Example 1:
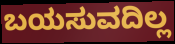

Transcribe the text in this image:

ಬಯಸುವದಿಲ್ಲ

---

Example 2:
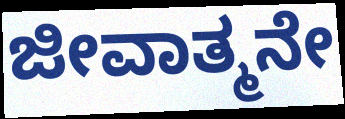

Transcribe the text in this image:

ಜೀವಾತ್ಮನೇ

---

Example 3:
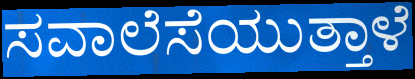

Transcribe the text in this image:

ಸವಾಲೆಸೆಯುತ್ತಾಳೆ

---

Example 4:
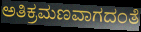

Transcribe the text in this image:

ಅತಿಕ್ರಮಣವಾಗದಂತೆ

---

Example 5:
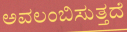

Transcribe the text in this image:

ಅವಲಂಬಿಸುತ್ತದೆ